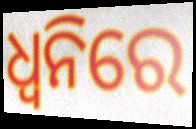
ଧ୍ୱନିରେ